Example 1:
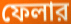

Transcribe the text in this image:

ফেলার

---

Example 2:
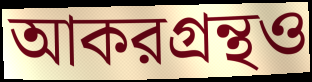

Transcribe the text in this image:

আকরগ্রন্থও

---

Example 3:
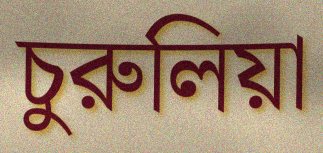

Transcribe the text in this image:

চুরুলিয়া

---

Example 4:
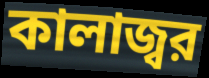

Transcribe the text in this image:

কালাজ্বর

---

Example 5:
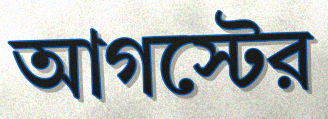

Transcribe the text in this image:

আগস্টের